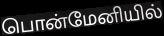
பொன்மேனியில்